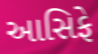
આસિફે